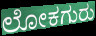
ಲೋಕಗುರು